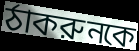
ঠাকরুনকে